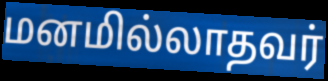
மனமில்லாதவர்